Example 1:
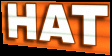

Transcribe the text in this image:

HAT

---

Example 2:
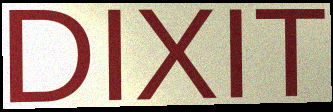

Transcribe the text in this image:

DIXIT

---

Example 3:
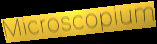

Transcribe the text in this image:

Microscopium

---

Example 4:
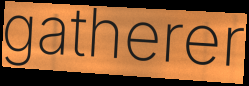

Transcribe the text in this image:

gatherer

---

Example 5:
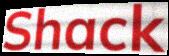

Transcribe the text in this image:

Shack